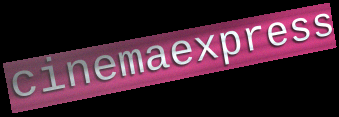
cinemaexpress